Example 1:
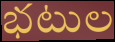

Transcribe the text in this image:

భటుల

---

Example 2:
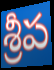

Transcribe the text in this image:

శ్రీప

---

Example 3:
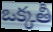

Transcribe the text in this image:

ఒక్కతీ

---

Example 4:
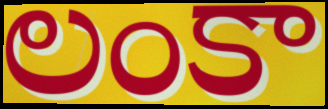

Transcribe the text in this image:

లంకా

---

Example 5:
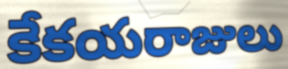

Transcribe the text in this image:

కేకయరాజులు